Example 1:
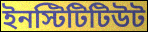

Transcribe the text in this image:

ইনস্টিটিটিউট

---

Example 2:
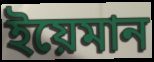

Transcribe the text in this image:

ইয়েমান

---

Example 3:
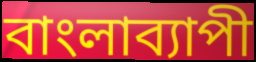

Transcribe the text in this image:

বাংলাব্যাপী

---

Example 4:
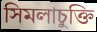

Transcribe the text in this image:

সিমলাচুক্তি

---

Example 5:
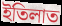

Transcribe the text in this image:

ইতিলাত